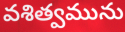
వశిత్వమును